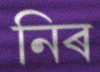
নিৰ